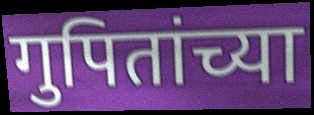
गुपितांच्या